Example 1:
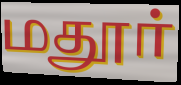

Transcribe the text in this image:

மதூர்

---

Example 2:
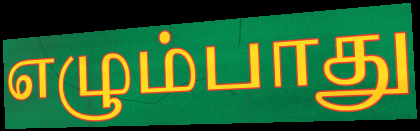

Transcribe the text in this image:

எழும்பாது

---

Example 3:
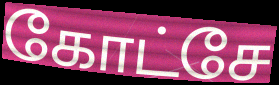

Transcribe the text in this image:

கோட்சே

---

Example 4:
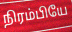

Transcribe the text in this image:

நிரம்பியே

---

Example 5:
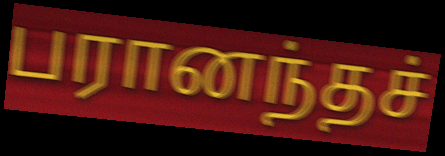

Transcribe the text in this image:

பரானந்தச்